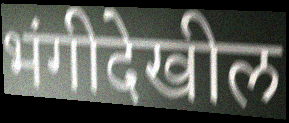
भंगीदेखील